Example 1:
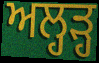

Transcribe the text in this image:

ਅਲ੍ਹੜ੍ਹ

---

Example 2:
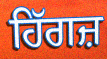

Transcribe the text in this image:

ਹਿੱਗਜ਼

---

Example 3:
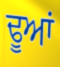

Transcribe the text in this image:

ਢੂਆਂ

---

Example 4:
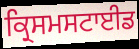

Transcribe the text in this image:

ਕ੍ਰਿਸਮਸਟਾਈਡ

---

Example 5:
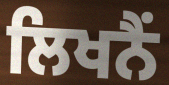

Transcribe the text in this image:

ਲਿਖਨੈਂ